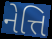
નેત્તિ